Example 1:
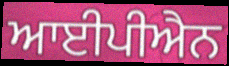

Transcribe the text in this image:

ਆਈਪੀਐਨ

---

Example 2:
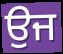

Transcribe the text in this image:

ਉਜ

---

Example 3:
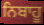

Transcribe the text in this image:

ਨਿਬਾਹੂ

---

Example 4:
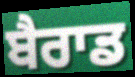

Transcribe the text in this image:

ਬੈਰਾਡ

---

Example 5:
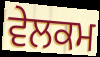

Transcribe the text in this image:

ਵੇਲਕਮ